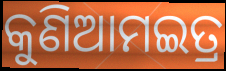
କୁଣିଆମଇତ୍ର